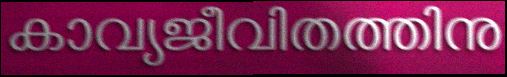
കാവ്യജീവിതത്തിനു